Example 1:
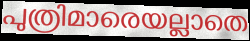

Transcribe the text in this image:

പുത്രിമാരെയല്ലാതെ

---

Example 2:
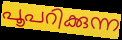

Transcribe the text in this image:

പൂപറിക്കുന്ന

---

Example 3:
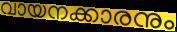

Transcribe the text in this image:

വായനക്കാരനും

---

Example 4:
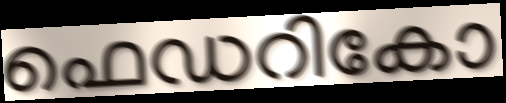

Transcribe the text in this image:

ഫെഡറികോ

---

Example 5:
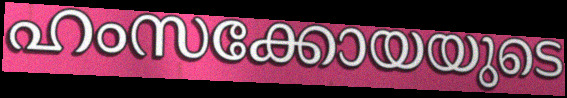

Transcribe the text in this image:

ഹംസക്കോയയുടെ